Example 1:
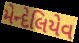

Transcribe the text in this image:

મેન્દેલિયેવ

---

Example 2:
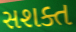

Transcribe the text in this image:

સશક્ત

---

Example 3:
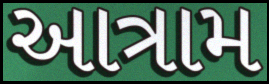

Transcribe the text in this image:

આત્રામ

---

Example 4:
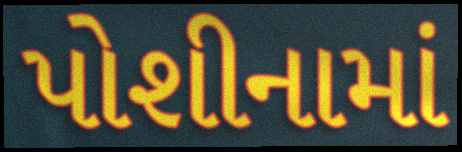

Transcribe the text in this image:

પોશીનામાં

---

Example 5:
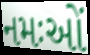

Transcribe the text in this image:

નમઃઓં